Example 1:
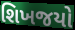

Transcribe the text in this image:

શિખજયો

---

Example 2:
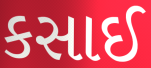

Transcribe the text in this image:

કસાઈ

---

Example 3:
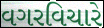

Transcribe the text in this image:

વગરવિચારે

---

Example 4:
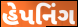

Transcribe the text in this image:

હેપનિંગ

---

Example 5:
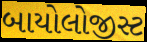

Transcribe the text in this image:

બાયોલોજીસ્ટ